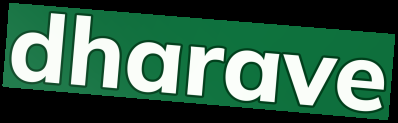
dharave